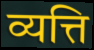
व्यत्ति